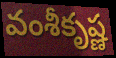
వంశీకృష్ణ